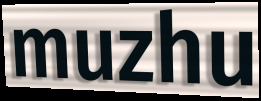
muzhu